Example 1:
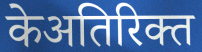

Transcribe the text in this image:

केअतिरिक्त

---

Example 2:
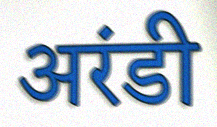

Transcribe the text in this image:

अरंडी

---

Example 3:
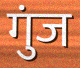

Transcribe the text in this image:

गुंज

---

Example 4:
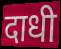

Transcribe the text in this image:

दाधी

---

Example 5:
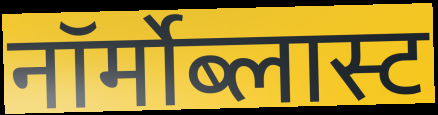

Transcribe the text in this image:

नॉर्मोब्लास्ट